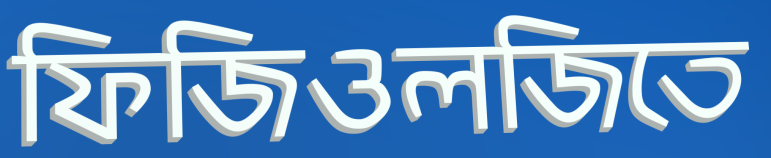
ফিজিওলজিতে